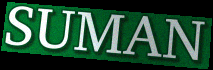
SUMAN